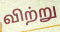
விற்று